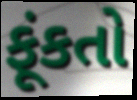
ફૂંકતો